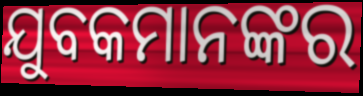
ଯୁବକମାନଙ୍କର